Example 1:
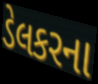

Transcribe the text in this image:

ડેલકરના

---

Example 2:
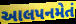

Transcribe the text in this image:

આલપનમેતં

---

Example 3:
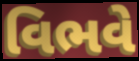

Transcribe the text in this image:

વિભવે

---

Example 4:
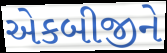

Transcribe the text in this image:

એકબીજીને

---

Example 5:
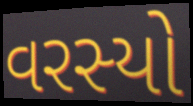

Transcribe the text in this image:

વરસ્યો